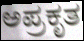
ಅಪ್ರಕೃತ